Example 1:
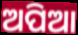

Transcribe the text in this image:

ଅପିଆ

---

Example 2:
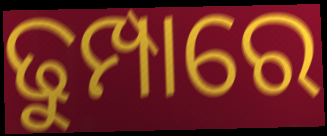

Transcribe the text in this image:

ଢୁମ୍ପାରେ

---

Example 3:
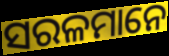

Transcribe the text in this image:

ସରଳମାନେ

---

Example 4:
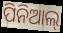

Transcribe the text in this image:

ପିନିଆଲ୍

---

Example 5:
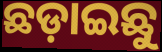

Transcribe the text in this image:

ଛଡ଼ାଇଛୁ